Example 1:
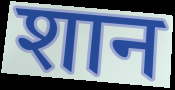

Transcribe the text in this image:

शान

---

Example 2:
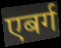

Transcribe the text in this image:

एबर्ग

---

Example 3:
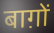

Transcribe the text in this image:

बाग़ों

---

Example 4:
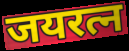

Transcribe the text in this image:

जयरत्न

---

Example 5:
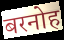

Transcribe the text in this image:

बरनोह